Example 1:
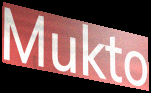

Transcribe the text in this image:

Mukto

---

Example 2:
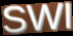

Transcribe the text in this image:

SWI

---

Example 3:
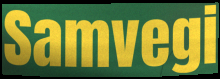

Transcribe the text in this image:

Samvegi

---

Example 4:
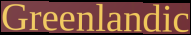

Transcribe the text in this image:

Greenlandic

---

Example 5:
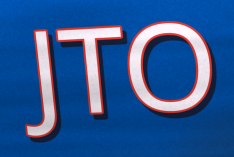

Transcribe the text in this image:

JTO